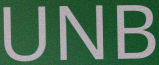
UNB